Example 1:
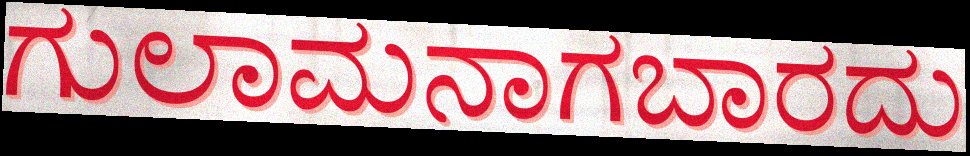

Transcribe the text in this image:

ಗುಲಾಮನಾಗಬಾರದು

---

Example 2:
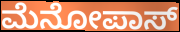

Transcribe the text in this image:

ಮೆನೋಪಾಸ್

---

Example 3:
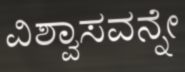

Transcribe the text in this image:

ವಿಶ್ವಾಸವನ್ನೇ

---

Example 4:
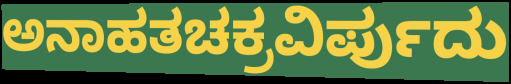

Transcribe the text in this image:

ಅನಾಹತಚಕ್ರವಿರ್ಪುದು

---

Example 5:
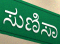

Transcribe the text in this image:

ಸುಣಿಸಾ